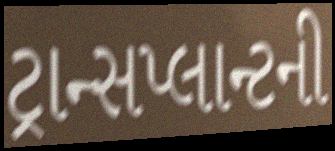
ટ્રાન્સપ્લાન્ટની